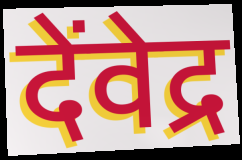
देंवेद्र